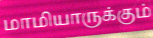
மாமியாருக்கும்